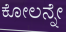
ಕೋಲನ್ನೇ